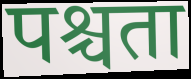
पश्चता